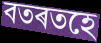
বতৰতহে